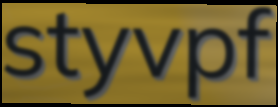
styvpf